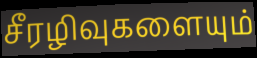
சீரழிவுகளையும்